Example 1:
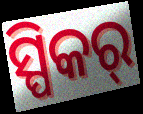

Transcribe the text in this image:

ସ୍ପିକର୍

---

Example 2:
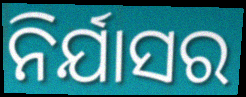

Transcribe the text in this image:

ନିର୍ଯାସର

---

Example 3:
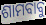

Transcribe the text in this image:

ଶାମବାବୁ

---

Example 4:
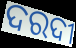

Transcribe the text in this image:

ଦରଦୀ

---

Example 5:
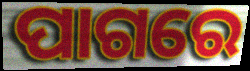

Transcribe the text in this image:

ପାଗରେ